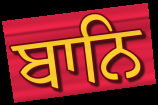
ਬਾਨਿ